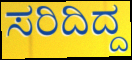
ಸರಿದಿದ್ದ